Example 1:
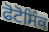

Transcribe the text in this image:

ਫੋਟੋਸਿੰਕ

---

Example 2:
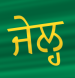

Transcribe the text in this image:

ਜੇਲ੍ਹ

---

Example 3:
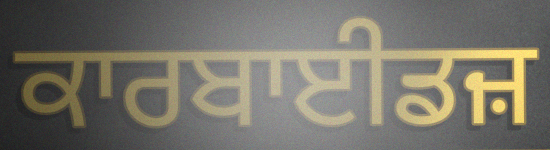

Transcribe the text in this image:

ਕਾਰਬਾਈਡਜ਼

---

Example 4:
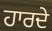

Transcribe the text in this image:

ਹਾਰਦੇ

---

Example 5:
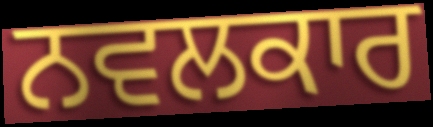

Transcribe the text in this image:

ਨਵਲਕਾਰ